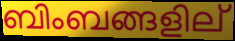
ബിംബങ്ങളില്